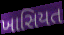
ખાસિયત